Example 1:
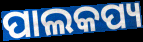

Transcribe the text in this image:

ପାଲକପ୍ୟ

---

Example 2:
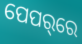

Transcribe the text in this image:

ପେପର୍‌ରେ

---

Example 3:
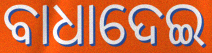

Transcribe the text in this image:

ବାଧାଦେଇ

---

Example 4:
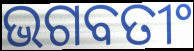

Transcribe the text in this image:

ଭଗବତୀଂ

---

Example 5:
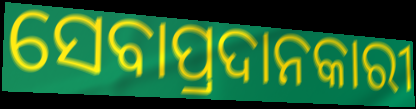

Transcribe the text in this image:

ସେବାପ୍ରଦାନକାରୀ